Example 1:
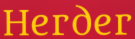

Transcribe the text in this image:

Herder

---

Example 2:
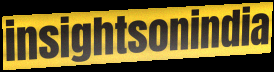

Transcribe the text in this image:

insightsonindia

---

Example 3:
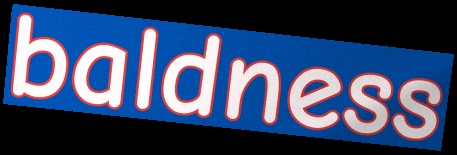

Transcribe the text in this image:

baldness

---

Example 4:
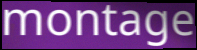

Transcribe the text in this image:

montage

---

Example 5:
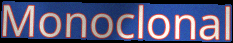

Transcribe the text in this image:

Monoclonal